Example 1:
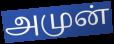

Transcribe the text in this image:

அமுன்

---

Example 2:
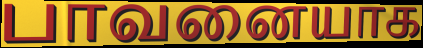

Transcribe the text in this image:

பாவனையாக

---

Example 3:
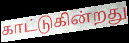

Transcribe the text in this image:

காட்டுகின்றது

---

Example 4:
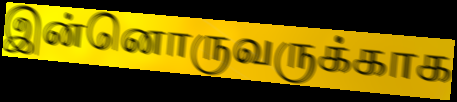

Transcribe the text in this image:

இன்னொருவருக்காக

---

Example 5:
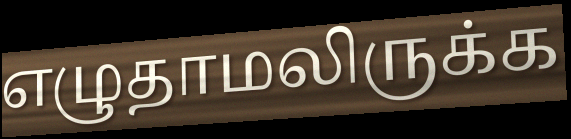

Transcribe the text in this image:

எழுதாமலிருக்க